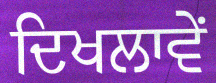
ਦਿਖਲਾਵੇਂ